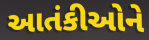
આતંકીઓને